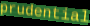
prudential